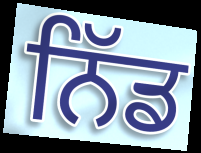
ਨਿੱਡ